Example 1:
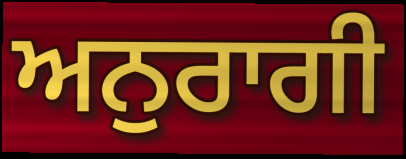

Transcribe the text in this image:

ਅਨੁਰਾਗੀ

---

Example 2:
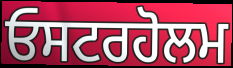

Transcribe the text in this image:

ਓਸਟਰਹੋਲਮ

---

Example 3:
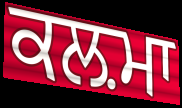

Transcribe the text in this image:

ਕਲ਼ਮਾ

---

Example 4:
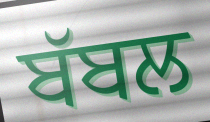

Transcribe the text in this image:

ਬੱਬਲ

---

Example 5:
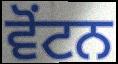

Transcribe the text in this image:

ਵੋਂਟਨ